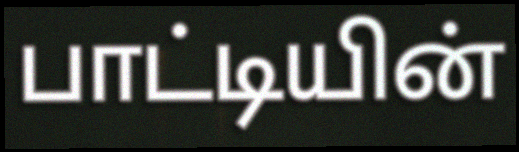
பாட்டியின்